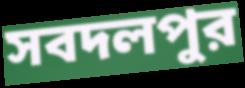
সবদলপুর